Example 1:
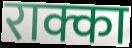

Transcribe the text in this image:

राक्का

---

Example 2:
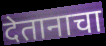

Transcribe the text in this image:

देतानाचा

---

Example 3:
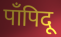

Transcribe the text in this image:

पाँपिदू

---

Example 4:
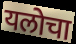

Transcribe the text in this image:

यलोचा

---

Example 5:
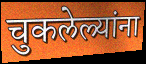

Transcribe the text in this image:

चुकलेल्यांना